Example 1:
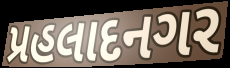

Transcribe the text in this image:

પ્રહલાદનગર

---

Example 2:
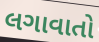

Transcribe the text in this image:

લગાવાતો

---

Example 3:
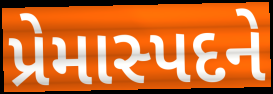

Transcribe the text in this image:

પ્રેમાસ્પદને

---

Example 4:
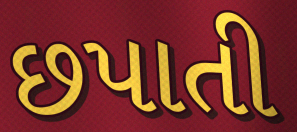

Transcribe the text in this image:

છપાતી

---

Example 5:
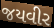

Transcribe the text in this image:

જયવીર